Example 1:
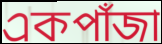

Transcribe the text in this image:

একপাঁজা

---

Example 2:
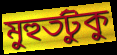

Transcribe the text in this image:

মুহুর্তটুকু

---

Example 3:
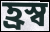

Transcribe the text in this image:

হ্রস্ব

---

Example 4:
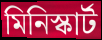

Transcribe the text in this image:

মিনিস্কার্ট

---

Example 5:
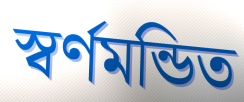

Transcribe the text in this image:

স্বর্ণমন্ডিত